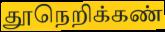
தூநெறிக்கண்